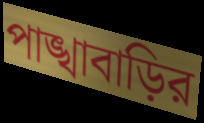
পাঙ্খাবাড়ির